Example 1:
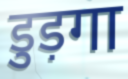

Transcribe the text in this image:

डुड़गा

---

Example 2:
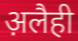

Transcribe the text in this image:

अ़लैही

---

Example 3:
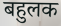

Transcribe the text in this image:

बहुलक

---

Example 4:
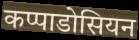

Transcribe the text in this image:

कप्पाडोसियन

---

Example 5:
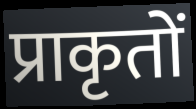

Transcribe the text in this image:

प्राकृतों